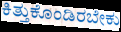
ಕಿತ್ತುಕೊಂಡಿರಬೇಕು